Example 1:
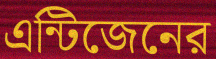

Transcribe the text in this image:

এন্টিজেনের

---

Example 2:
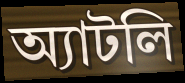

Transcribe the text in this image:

অ্যাটলি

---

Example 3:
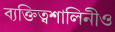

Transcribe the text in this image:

ব্যক্তিত্বশালিনীও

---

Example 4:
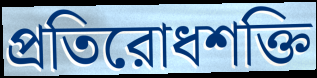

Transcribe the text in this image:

প্রতিরোধশক্তি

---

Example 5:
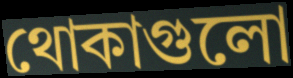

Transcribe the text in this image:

থোকাগুলো